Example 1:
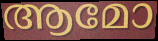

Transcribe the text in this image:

ആമോ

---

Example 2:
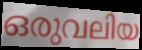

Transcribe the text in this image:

ഒരുവലിയ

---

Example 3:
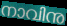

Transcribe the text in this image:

നാവിനു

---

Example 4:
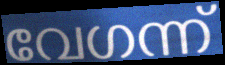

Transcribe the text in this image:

വേഗന്ന്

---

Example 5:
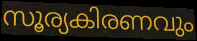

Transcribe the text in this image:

സൂര്യകിരണവും